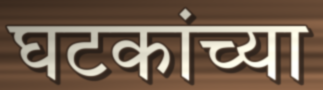
घटकांच्या